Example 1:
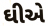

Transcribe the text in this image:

ઘીએ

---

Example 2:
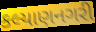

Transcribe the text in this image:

કલ્યાણનગરી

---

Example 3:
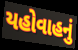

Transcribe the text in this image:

યહોવાહનું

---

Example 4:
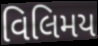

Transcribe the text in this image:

વિલિમય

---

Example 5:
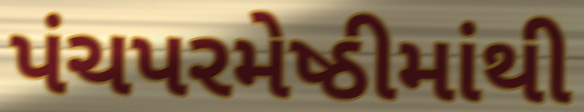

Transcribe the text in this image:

પંચપરમેષ્ઠીમાંથી